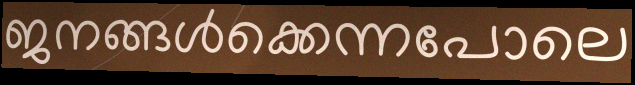
ജനങ്ങൾക്കെന്നപോലെ